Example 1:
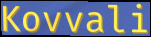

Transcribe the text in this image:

Kovvali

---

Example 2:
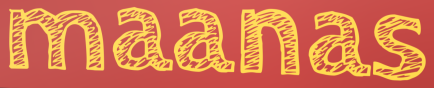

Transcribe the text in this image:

maanas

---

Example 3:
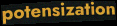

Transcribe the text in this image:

potensization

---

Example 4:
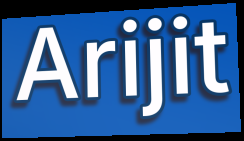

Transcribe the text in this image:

Arijit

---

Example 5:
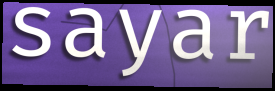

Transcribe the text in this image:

sayar